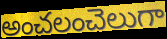
అంచలంచెలుగా